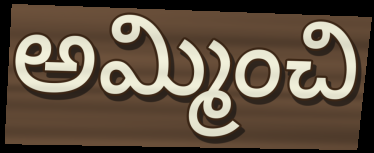
అమ్మించి